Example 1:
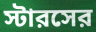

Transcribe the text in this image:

স্টারসের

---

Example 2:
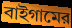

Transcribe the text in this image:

বাইগামের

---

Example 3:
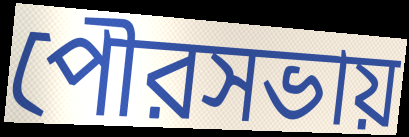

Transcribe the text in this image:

পৌরসভায়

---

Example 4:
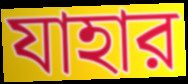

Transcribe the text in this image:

যাহার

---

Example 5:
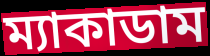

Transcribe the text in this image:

ম্যাকাডাম